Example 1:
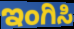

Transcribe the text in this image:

ಇಂಗಿಸಿ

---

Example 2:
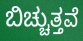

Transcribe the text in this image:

ಬಿಚ್ಚುತ್ತವೆ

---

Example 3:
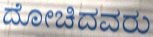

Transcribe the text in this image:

ದೋಚಿದವರು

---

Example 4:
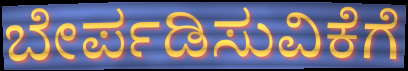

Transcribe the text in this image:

ಬೇರ್ಪಡಿಸುವಿಕೆಗೆ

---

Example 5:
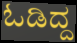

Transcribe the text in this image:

ಓಡಿದ್ದ